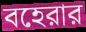
বহেরার